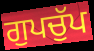
ਗੁਪਚੁੱਪ